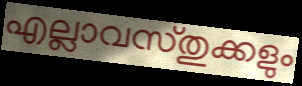
എല്ലാവസ്തുക്കളും